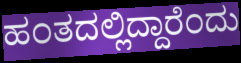
ಹಂತದಲ್ಲಿದ್ದಾರೆಂದು